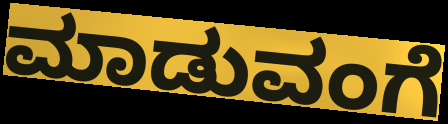
ಮಾಡುವಂಗೆ